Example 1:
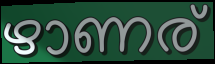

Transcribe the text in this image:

ഴാണര്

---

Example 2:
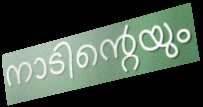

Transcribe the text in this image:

നാടിന്റെയും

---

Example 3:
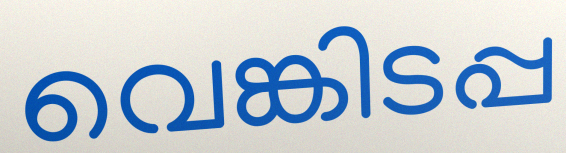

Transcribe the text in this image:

വെങ്കിടപ്പ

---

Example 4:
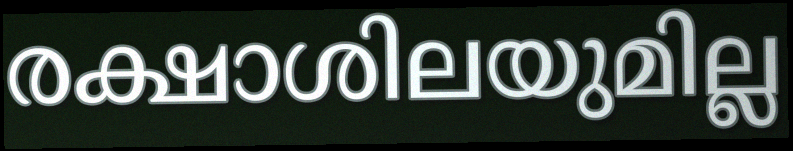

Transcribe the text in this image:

രക്ഷാശിലയുമില്ല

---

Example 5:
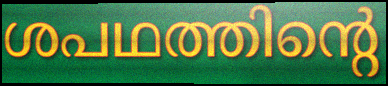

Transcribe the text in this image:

ശപഥത്തിന്റെ